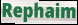
Rephaim